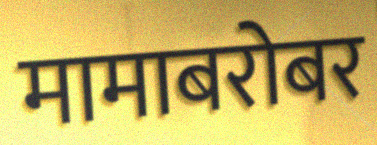
मामाबरोबर